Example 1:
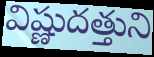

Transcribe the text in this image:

విష్ణుదత్తుని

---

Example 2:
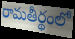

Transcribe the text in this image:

రామతీర్థంలో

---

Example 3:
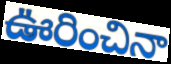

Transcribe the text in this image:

ఊరించినా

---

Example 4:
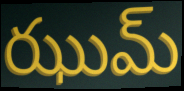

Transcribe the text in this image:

ఝుమ్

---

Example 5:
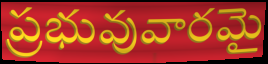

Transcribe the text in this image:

ప్రభువువారమై